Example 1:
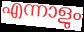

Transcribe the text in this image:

എന്നാളും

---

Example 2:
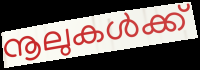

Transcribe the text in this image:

നൂലുകൾക്ക്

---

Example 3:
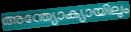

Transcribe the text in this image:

അന്ത്യോക്യായിലും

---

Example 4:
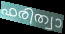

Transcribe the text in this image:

ഫരിത്വാ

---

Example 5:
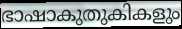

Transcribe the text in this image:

ഭാഷാകുതുകികളും